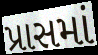
પ્રાસમાં